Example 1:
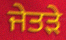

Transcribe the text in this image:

ਜੇਤੜੇ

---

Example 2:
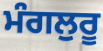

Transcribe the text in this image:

ਮੰਗਲੁਰੂ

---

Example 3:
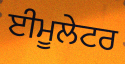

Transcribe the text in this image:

ਈਮੂਲੇਟਰ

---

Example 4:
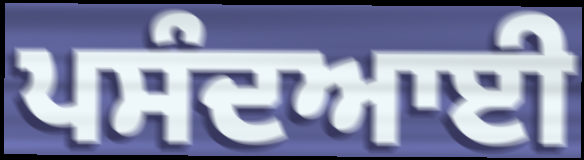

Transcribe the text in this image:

ਪਸੰਦਆਈ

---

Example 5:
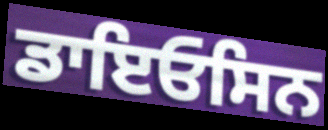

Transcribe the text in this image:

ਡਾਇਓਸਿਨ